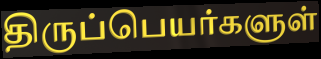
திருப்பெயர்களுள்